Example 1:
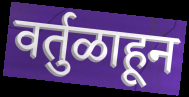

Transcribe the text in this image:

वर्तुळाहून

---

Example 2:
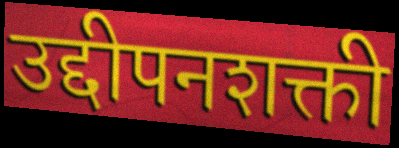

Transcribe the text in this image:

उद्दीपनशक्ती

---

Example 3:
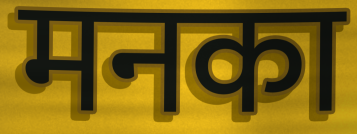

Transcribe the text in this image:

मनका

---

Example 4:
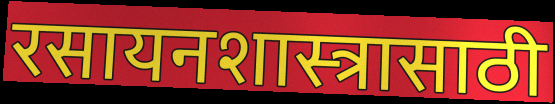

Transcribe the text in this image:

रसायनशास्त्रासाठी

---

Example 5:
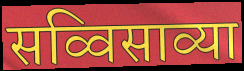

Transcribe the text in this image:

सव्विसाव्या